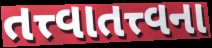
તત્ત્વાતત્ત્વના